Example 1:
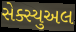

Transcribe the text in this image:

સેક્સ્યુઅલ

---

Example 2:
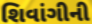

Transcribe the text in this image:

શિવાંગીની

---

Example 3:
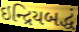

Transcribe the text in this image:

ઇન્દ્રિયબદ્ધં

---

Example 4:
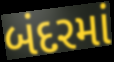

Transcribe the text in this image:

બંદરમાં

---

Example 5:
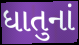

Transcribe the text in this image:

ધાતુનાં